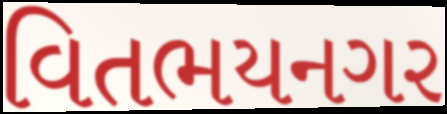
વિતભયનગર